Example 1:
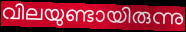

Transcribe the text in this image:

വിലയുണ്ടായിരുന്നു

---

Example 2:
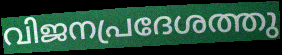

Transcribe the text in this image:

വിജനപ്രദേശത്തു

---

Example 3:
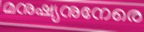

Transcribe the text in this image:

മനുഷ്യനുനേരെ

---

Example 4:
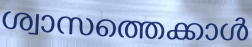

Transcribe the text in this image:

ശ്വാസത്തെക്കാൾ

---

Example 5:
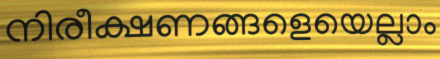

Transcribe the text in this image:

നിരീക്ഷണങ്ങളെയെല്ലാം